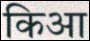
किआ